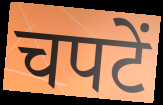
चपटें